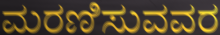
ಮರಣಿಸುವವರ